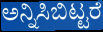
ಅನ್ನಿಸಿಬಿಟ್ಟರೆ